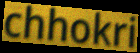
chhokri